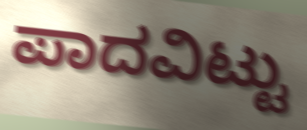
ಪಾದವಿಟ್ಟು